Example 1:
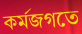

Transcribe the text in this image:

কর্মজগতে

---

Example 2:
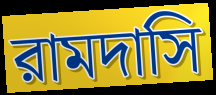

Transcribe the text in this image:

রামদাসি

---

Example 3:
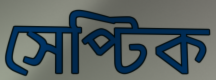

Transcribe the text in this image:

সেপ্টিক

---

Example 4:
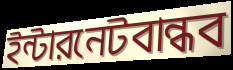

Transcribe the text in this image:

ইন্টারনেটবান্ধব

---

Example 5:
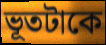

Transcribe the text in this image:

ভূতটাকে